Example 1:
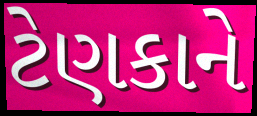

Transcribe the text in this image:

ટેણકાને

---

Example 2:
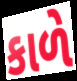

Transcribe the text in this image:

કાળે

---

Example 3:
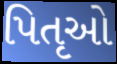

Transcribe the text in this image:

પિતૃઓ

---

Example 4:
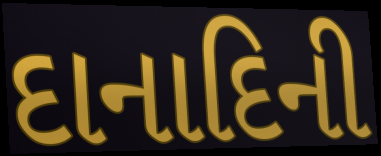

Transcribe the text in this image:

દાનાદિની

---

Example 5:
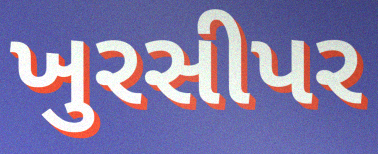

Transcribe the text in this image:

ખુરસીપર